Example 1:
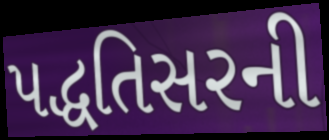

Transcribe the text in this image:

પદ્ધતિસરની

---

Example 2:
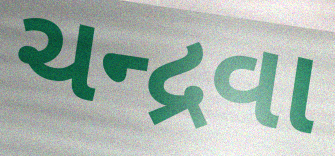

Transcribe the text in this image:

ચન્દ્રવા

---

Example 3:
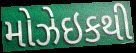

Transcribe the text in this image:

મોઝેઇકથી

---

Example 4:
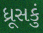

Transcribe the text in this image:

ધ્રૂસકું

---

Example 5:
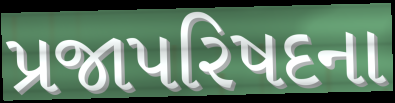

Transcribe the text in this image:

પ્રજાપરિષદના